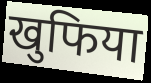
खुफिया